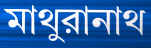
মাথুরানাথ